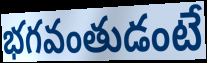
భగవంతుడంటే